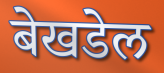
बेखडेल